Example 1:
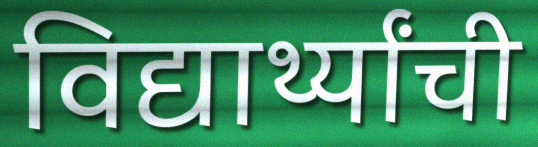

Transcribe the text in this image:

विद्यार्थ्‍यांची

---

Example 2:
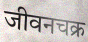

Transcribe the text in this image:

जीवनचक्र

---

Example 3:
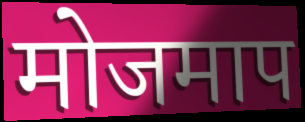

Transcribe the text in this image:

मोजमाप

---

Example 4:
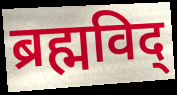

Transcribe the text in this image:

ब्रह्मविद्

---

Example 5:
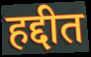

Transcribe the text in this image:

हद्दीत